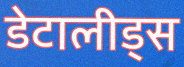
डेटालीड्स